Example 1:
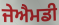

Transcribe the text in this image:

ਜੇਐਮਡੀ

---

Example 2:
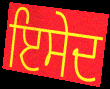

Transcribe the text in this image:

ਇਸੇਦ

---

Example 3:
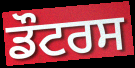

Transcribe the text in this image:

ਡੌਟਰਸ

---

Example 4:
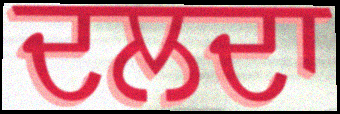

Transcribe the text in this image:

ਦਲਦਾ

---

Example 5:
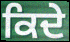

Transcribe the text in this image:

ਕਿਦੇ